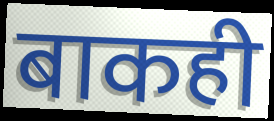
बाकही